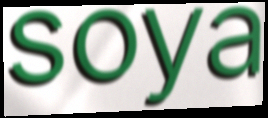
soya